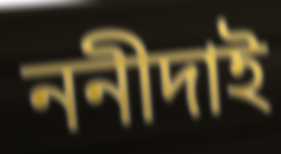
ননীদাই